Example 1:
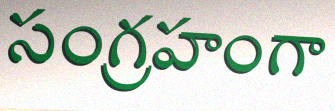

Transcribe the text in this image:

సంగ్రహంగా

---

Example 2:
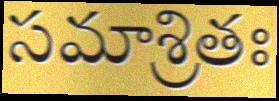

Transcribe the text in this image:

సమాశ్రితః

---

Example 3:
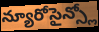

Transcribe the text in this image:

న్యూరోసైన్స్లో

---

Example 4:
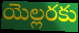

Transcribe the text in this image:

యెల్లరకు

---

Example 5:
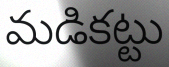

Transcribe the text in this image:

మడికట్టు